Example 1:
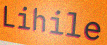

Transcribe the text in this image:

Lihile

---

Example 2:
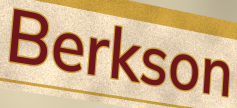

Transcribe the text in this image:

Berkson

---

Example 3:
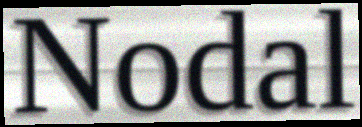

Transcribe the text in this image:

Nodal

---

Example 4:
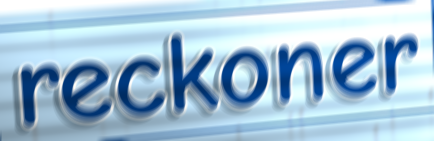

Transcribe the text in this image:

reckoner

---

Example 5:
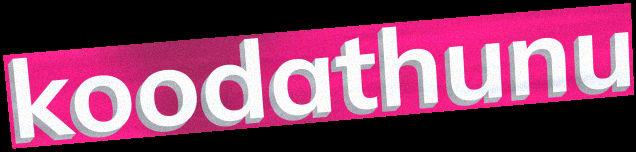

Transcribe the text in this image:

koodathunu